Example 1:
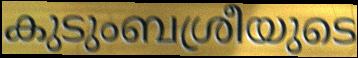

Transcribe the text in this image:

കുടുംബശ്രീയുടെ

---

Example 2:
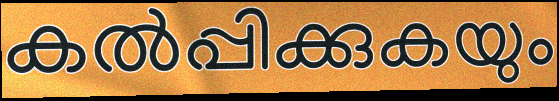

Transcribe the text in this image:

കൽപ്പിക്കുകയും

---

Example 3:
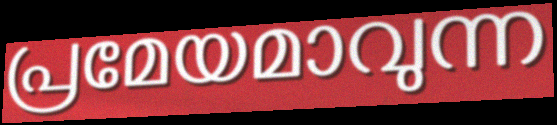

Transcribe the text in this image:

പ്രമേയമാവുന്ന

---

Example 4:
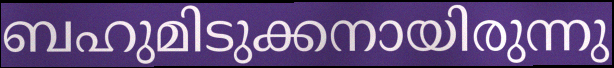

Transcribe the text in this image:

ബഹുമിടുക്കനായിരുന്നു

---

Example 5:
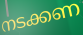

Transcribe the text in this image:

നടക്കണ